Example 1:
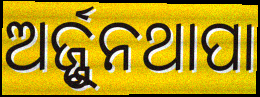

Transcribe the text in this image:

ଅର୍ଜ୍ଜୁନଥାପା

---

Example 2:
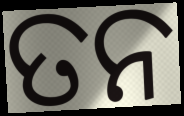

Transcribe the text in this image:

ତନ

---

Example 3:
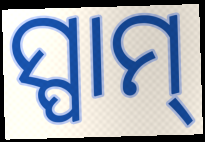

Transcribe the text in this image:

ସ୍ପାମ୍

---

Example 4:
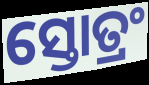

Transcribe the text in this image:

ସ୍ତୋତ୍ରଂ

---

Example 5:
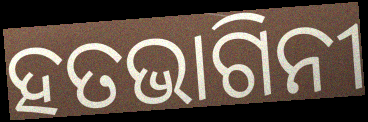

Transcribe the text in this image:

ହତଭାଗିନୀ